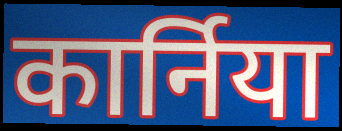
कार्निया